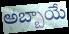
అబ్బాయే